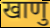
खाणु